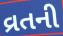
વ્રતની